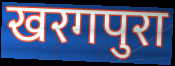
खरगपुरा